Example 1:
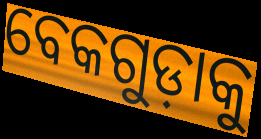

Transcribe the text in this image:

ବେକଗୁଡ଼ାକୁ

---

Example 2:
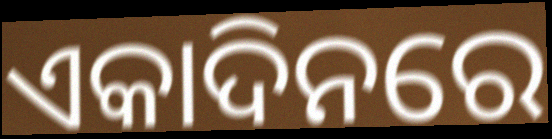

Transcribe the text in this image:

ଏକାଦିନରେ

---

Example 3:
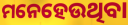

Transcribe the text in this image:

ମନେହେଉଥିବା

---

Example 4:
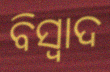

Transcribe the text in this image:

ବିସ୍ଵାଦ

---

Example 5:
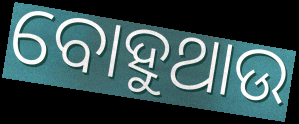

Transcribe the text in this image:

ବୋହୁଥାଉ